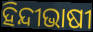
ହିନ୍ଦୀଭାଷୀ